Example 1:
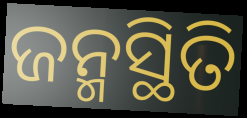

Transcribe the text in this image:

ଜନ୍ମସ୍ଥିତି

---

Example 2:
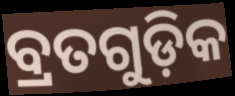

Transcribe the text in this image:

ବ୍ରତଗୁଡ଼ିକ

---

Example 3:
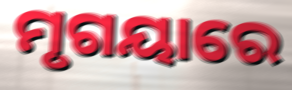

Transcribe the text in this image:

ମୃଗୟାରେ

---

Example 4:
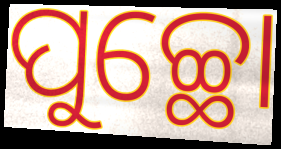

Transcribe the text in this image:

ପୁଚ୍ଛୋ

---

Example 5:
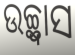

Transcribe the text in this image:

ଉଚ୍ଛ୍ୱାସ